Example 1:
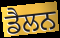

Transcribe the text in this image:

ਡੈਲਨ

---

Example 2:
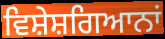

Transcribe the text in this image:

ਵਿਸ਼ੇਸ਼ਗਿਆਨਾਂ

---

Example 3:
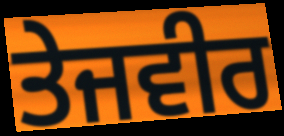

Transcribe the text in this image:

ਤੇਜਵੀਰ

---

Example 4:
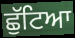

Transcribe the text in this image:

ਛੁੱਟਿਆ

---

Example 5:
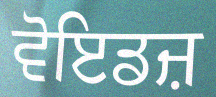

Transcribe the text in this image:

ਵੋਇਡਜ਼